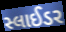
સ્લાઈડર